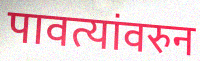
पावत्यांवरुन